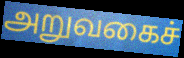
அறுவகைச்